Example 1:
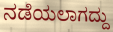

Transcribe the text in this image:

ನಡೆಯಲಾಗದ್ದು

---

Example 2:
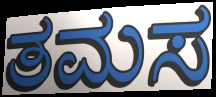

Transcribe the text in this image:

ತಮಸ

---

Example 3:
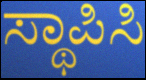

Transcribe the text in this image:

ಸ್ಥಾಪಿಸಿ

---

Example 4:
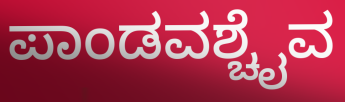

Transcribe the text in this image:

ಪಾಂಡವಶ್ಚೈವ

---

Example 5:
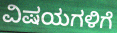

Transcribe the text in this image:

ವಿಷಯಗಳಿಗೆ